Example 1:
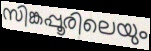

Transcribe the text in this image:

സിങ്കപ്പൂരിലെയും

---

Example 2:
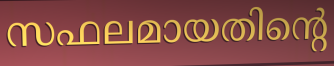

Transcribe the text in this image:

സഫലമായതിന്റെ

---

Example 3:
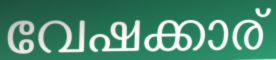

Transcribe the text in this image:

വേഷക്കാര്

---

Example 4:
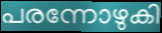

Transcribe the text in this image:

പരന്നോഴുകി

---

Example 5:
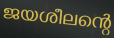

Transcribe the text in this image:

ജയശീലന്റെ